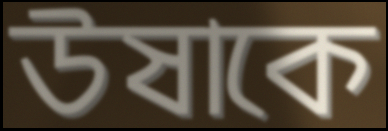
উষাকে